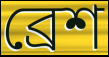
ব্রেশ